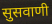
सुसवाणी